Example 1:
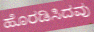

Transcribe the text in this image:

ಹೊರಡಿಸಿದವು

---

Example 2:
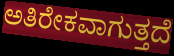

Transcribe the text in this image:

ಅತಿರೇಕವಾಗುತ್ತದೆ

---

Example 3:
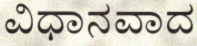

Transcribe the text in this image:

ವಿಧಾನವಾದ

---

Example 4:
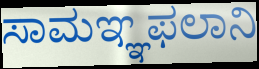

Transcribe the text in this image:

ಸಾಮಞ್ಞಫಲಾನಿ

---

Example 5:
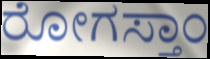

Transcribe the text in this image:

ರೋಗಸ್ತಾಂ